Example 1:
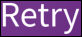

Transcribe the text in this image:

Retry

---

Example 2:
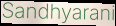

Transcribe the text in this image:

Sandhyarani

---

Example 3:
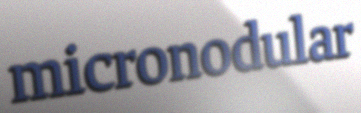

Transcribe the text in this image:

micronodular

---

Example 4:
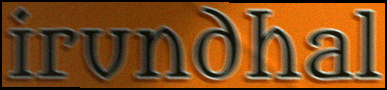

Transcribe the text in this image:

irundhal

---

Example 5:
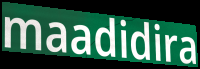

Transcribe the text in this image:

maadidira